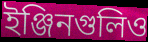
ইঞ্জিনগুলিও